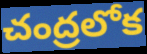
చంద్రలోక